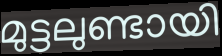
മുട്ടലുണ്ടായി